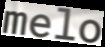
melo